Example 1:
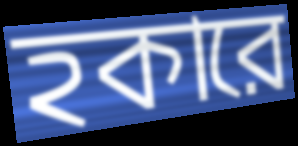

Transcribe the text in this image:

হকারে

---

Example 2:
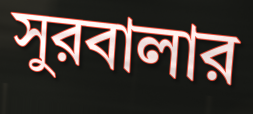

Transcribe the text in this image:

সুরবালার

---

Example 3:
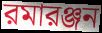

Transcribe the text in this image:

রমারঞ্জন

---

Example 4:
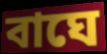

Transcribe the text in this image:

বাঘে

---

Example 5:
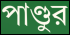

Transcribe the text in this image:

পাণ্ডুর